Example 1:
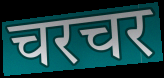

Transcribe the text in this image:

चरचर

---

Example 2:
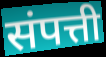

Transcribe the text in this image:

संपत्ती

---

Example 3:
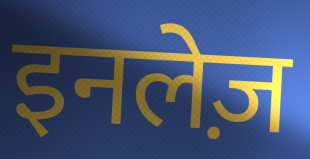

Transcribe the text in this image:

इनलेज़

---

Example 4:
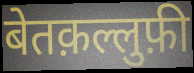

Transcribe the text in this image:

बेतक़ल्लुफ़ी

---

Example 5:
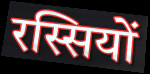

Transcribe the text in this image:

रस्सियों